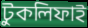
টুকলিফাই